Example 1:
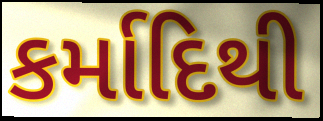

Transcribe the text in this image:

કર્માદિથી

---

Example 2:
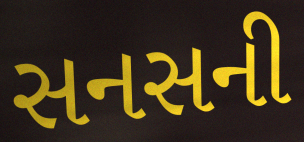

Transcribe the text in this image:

સનસની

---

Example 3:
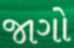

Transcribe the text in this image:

જાગો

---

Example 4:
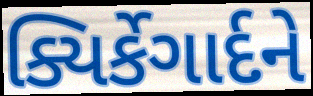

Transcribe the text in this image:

ક્યિર્કેગાર્દને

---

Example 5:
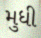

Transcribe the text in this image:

મુધી